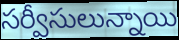
సర్వీసులున్నాయి